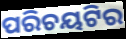
ପରିଚୟଟିର